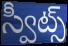
స్వీట్స్